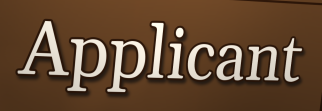
Applicant